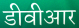
डीवीआर